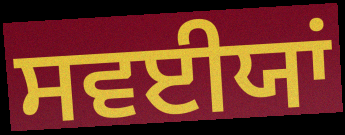
ਸਵਈਯਾਂ